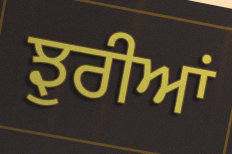
ਝੁਰੀਆਂ